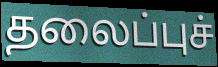
தலைப்புச்